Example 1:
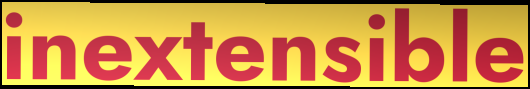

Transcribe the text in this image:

inextensible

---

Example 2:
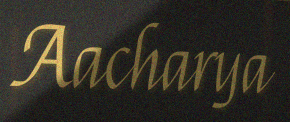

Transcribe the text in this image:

Aacharya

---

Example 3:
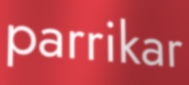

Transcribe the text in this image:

parrikar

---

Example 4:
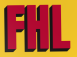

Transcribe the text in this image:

FHL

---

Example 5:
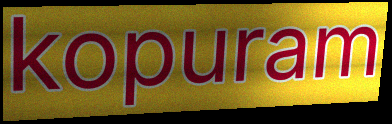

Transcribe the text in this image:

kopuram